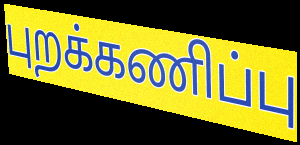
புறக்கணிப்பு